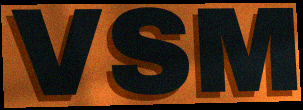
VSM